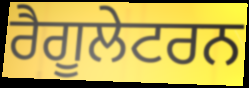
ਰੈਗੂਲੇਟਰਨ